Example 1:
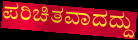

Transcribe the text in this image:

ಪರಿಚಿತವಾದದ್ದು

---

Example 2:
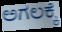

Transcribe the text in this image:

ಅಗಲಕ್ಕೆ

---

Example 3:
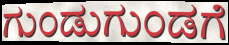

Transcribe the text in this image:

ಗುಂಡುಗುಂಡಗೆ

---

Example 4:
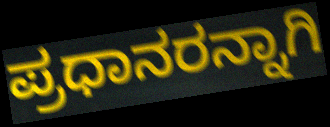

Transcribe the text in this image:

ಪ್ರಧಾನರನ್ನಾಗಿ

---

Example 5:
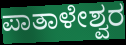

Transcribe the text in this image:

ಪಾತಾಳೇಶ್ವರ